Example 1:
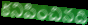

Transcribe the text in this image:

కనిపించినది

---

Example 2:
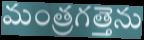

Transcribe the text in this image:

మంత్రగత్తెను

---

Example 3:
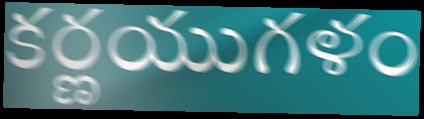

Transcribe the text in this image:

కర్ణయుగళం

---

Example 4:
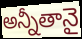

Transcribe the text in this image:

అన్నీతానై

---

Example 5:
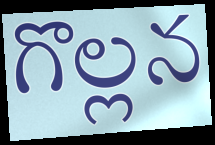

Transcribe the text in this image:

గొల్లన